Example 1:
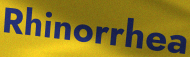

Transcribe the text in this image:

Rhinorrhea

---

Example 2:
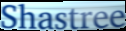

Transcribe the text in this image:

Shastree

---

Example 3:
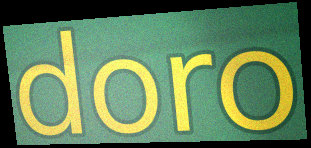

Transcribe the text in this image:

doro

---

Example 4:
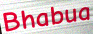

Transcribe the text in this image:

Bhabua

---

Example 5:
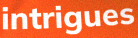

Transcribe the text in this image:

intrigues